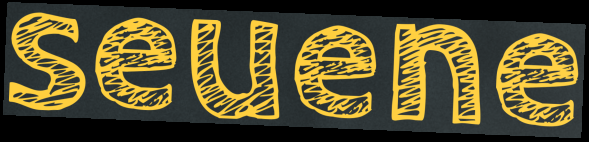
seuene